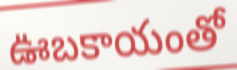
ఊబకాయంతో